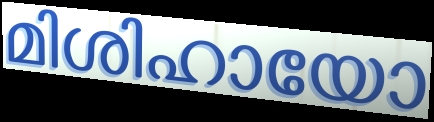
മിശിഹായോ